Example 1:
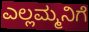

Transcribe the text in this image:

ಎಲ್ಲಮ್ಮನಿಗೆ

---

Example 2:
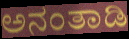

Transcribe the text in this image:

ಅನಂತಾಡಿ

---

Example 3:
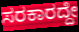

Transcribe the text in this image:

ಸರಕಾರದ್ದೇ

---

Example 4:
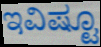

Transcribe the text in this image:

ಇವಿಷ್ಟೂ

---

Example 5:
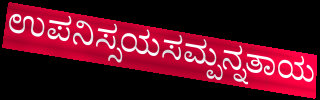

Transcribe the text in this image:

ಉಪನಿಸ್ಸಯಸಮ್ಪನ್ನತಾಯ